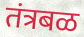
तंत्रबळ